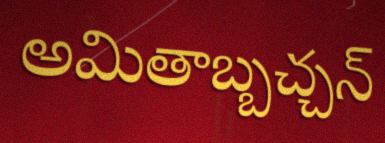
అమితాబ్బచ్చన్